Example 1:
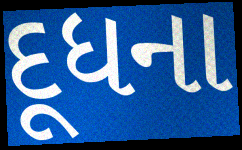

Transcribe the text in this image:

દૂધના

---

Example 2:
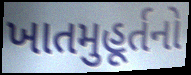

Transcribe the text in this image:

ખાતમુહૂર્તનો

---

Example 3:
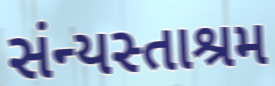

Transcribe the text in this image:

સંન્યસ્તાશ્રમ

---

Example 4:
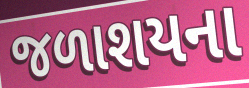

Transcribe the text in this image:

જળાશયના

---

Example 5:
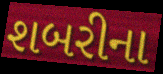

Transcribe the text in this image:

શબરીના